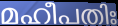
മഹീപതിഃ